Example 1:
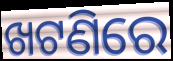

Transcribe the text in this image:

ଖଟଣିରେ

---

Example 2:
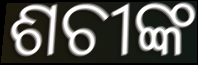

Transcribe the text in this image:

ଶଚୀଙ୍କ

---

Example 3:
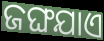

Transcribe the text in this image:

ଜଙ୍ଘଯାଏ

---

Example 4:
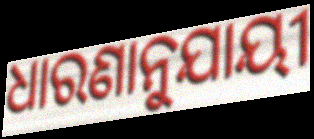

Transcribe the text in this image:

ଧାରଣାନୁଯାୟୀ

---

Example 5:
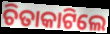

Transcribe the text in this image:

ଚିତାକାଟିଲେ